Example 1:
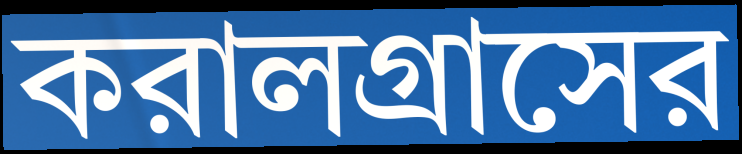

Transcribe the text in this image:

করালগ্রাসের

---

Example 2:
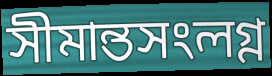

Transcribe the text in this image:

সীমান্তসংলগ্ন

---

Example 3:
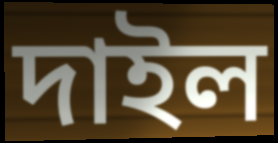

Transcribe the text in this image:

দাইল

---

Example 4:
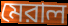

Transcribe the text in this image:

মেরাল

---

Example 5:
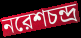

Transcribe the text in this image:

নরেশচন্দ্র